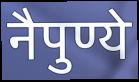
नैपुण्ये